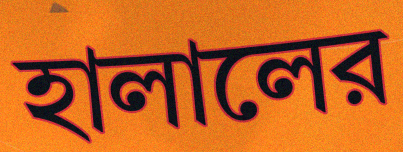
হালালের